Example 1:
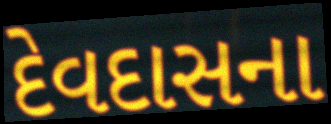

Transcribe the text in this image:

દેવદાસના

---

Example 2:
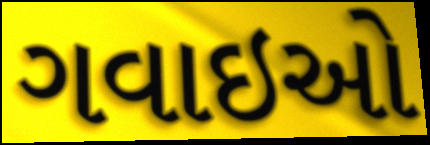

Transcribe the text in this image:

ગવાઇઓ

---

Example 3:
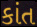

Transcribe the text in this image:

કાંત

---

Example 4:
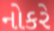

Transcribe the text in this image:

નોકરે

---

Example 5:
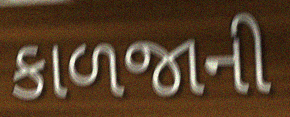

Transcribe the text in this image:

કાળજાની